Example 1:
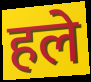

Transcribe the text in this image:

हले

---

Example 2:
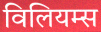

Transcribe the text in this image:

विलियम्‍स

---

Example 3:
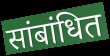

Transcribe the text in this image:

सांबांधित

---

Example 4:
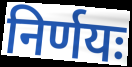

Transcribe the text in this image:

निर्णयः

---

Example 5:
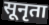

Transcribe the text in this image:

सूनृता